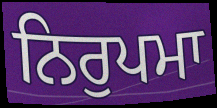
ਨਿਰੁਪਮਾ